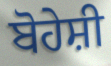
ਬੋਹੇਸ਼ੀ